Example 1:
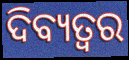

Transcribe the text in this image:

ଦିବ୍ୟତ୍ବର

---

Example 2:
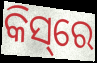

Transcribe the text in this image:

କିସ୍‌ରେ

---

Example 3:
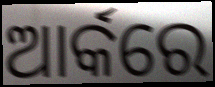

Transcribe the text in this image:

ଆର୍କରେ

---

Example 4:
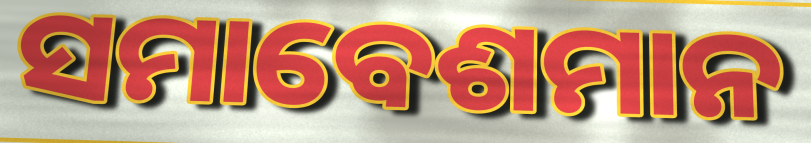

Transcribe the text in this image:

ସମାବେଶମାନ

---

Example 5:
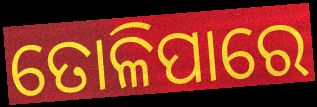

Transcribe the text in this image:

ତୋଳିପାରେ